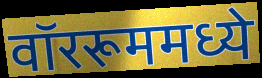
वॉररूममध्ये